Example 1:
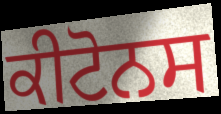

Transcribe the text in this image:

ਕੀਟੋਨਸ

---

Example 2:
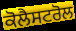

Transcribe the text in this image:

ਕੋਲੈਸਟਰੋਲ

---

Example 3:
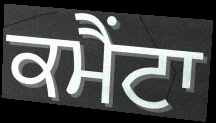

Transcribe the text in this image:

ਕਮੈਂਟਾ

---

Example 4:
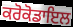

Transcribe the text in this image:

ਕਰੋਕੋਡਾਇਲ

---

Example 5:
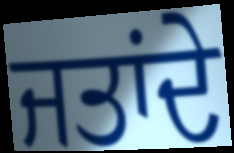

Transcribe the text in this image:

ਜਤਾਂਦੇ